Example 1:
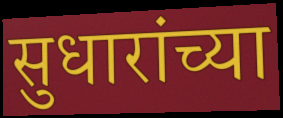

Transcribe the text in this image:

सुधारांच्या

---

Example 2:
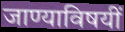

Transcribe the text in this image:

जाण्याविषयीं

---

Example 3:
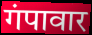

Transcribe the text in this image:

गंपावार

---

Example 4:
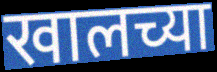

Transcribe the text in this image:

खालच्या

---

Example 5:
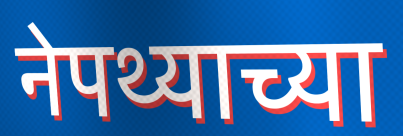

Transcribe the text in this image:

नेपथ्याच्या